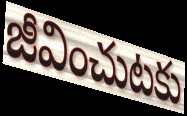
జీవించుటకు